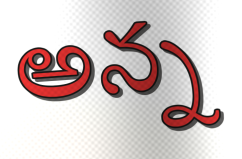
అన్న